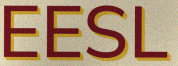
EESL